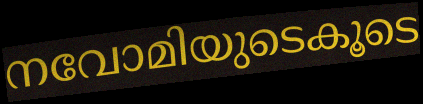
നവോമിയുടെകൂടെ